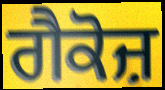
ਗੈਕੋਜ਼